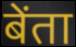
बेंता